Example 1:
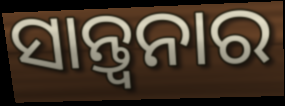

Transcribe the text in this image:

ସାନ୍ତ୍ବନାର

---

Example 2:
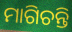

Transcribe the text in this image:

ମାଗିଚନ୍ତି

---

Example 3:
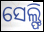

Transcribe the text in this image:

ସେଲ୍ଫି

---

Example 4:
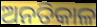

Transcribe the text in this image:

ଅନତିକାଳ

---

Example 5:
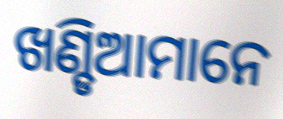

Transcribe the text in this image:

ଖଣ୍ଡିଆମାନେ